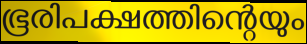
ഭൂരിപക്ഷത്തിന്റെയും